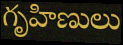
గృహిణులు